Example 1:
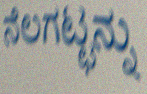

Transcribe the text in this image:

ನೆಲಗಟ್ಟನ್ನು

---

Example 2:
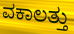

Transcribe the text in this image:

ವಕಾಲತ್ತು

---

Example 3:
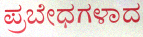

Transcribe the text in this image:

ಪ್ರಬೇಧಗಳಾದ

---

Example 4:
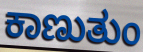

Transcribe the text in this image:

ಕಾಣುತುಂ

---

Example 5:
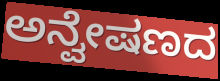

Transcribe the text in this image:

ಅನ್ವೇಷಣದ